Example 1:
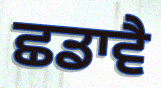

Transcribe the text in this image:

ਛਡਾਵੈ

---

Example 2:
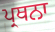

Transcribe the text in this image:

ਪ੍ਰਥਨਾ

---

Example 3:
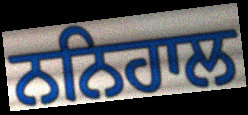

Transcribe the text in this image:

ਨਨਿਹਾਲ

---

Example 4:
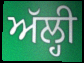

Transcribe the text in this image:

ਅੱਲ੍ਹੀ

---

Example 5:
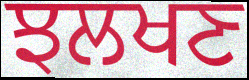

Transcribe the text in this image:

ਝਲਖਣ